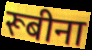
रूबीना